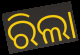
ରିଲା